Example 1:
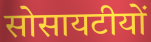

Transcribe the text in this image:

सोसायटीयों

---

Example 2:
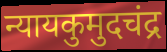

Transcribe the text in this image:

न्यायकुमुदचंद्र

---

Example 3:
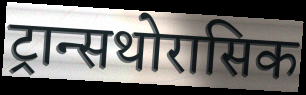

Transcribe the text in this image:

ट्रान्सथोरासिक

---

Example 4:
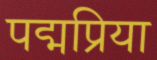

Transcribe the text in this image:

पद्मप्रिया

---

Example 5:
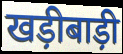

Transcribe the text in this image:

खड़ीबाड़ी